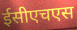
ईसीएचएस